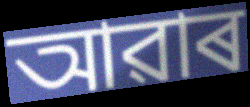
আৱাৰ